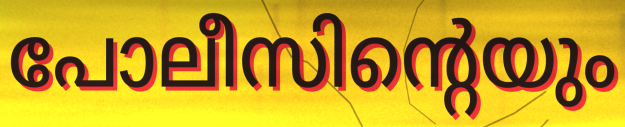
പോലീസിന്റെയും